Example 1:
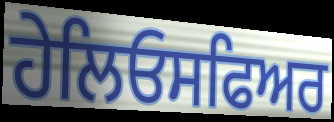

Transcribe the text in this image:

ਹੇਲਿਓਸਫਿਅਰ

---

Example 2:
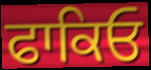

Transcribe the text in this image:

ਫਾਕਿਓ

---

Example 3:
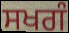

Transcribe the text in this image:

ਸਖਗੰ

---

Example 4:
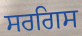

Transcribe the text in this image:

ਸਰਗਿਸ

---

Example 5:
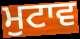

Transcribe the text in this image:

ਮੁਟਾਵ